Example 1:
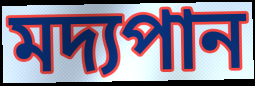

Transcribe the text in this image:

মদ্যপান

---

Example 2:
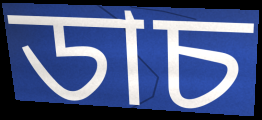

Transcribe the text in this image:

ডাচ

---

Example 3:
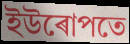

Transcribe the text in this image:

ইউৰোপতে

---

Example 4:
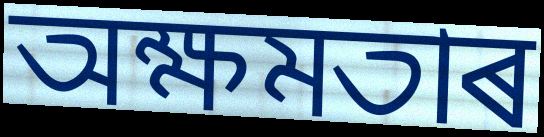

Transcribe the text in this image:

অক্ষমতাৰ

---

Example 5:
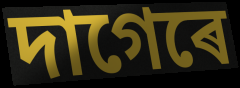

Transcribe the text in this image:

দাগেৰে